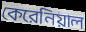
কেরেনিয়াল